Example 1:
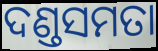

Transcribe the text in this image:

ଦଣ୍ଡସମତା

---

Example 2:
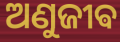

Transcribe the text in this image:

ଅଣୁଜୀଵ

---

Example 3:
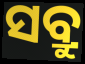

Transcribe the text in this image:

ସବ୍ରୁ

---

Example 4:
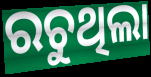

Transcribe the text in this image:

ରଚୁଥିଲା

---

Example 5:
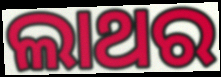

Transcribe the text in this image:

ଲାଥର